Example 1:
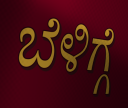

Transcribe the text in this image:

ಬೆಳಿಗ್ಗೆ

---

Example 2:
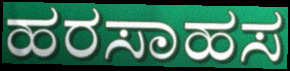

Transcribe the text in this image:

ಹರಸಾಹಸ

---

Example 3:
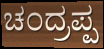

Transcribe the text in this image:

ಚಂದ್ರಪ್ಪ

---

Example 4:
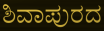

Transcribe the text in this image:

ಶಿವಾಪುರದ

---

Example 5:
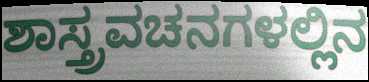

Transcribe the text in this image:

ಶಾಸ್ತ್ರವಚನಗಳಲ್ಲಿನ